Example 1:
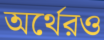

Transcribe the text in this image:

অর্থেরও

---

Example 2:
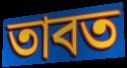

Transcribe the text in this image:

তাবত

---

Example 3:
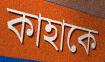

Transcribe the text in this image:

কাহাকে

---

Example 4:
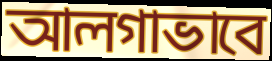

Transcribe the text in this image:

আলগাভাবে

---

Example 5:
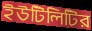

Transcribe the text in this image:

ইউটিলিটির